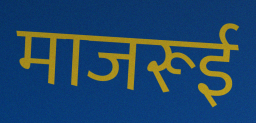
माजरूई